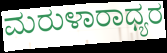
ಮರುಳಾರಾಧ್ಯರ